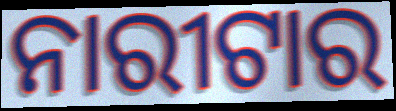
ନାରୀଟାର